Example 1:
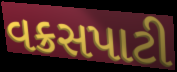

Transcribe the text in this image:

વક્રસપાટી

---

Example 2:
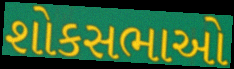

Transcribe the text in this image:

શોકસભાઓ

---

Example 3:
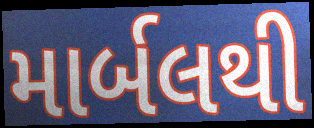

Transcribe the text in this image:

માર્બલથી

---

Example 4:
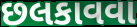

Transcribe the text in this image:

છલકાવવા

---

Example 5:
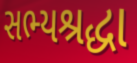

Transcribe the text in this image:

સભ્યશ્રદ્ધા